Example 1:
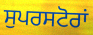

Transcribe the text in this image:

ਸੁਪਰਸਟੋਰਾਂ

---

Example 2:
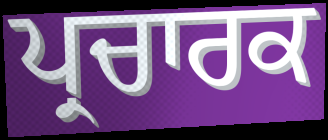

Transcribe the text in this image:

ਪ੍ਰਚਾਰਕ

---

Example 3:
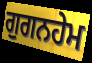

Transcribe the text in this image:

ਗੁਗਨਹੇਮ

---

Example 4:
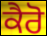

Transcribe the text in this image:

ਕੈਰੋ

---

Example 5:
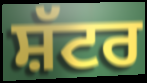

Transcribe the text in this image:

ਸ਼ੱਟਰ